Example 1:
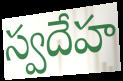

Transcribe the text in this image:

స్వదేహ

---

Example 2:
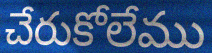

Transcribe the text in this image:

చేరుకోలేము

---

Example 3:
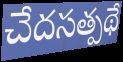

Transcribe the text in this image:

చేదసత్పథే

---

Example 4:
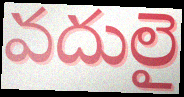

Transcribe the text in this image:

వదులై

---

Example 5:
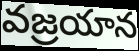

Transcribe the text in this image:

వజ్రయాన